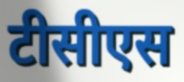
टीसीएस